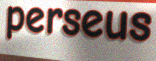
perseus